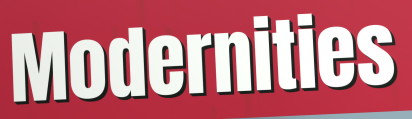
Modernities